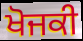
ਖੋਜਕੀ